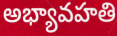
అభ్యావహతి